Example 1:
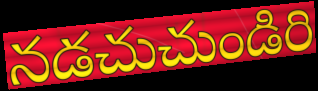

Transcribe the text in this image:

నడచుచుండిరి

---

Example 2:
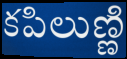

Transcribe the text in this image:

కపిలుణ్ణి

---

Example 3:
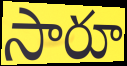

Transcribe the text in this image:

సారూ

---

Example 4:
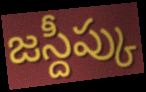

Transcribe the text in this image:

జస్దీప్కు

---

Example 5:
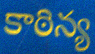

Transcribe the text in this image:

కాఠిన్య